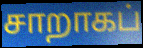
சாறாகப்